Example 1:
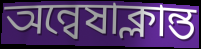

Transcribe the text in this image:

অন্বেষাক্লান্ত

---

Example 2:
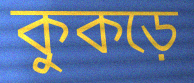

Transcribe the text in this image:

কুকড়ে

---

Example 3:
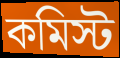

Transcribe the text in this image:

কমিস্ট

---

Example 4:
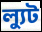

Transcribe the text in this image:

ল্যুট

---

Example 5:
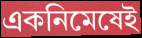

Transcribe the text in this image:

একনিমেষেই